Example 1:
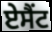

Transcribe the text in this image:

ਏਸੈਂਟ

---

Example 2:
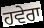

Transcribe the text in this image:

ਹਵੇਰਾ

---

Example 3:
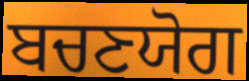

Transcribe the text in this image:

ਬਚਣਯੋਗ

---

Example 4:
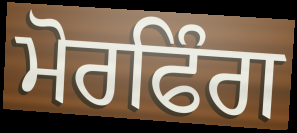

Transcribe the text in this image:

ਮੋਰਫਿੰਗ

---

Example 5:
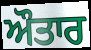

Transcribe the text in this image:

ਔਤਾਰ